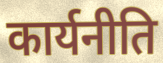
कार्यनीति